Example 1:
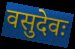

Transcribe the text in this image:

वसुदेवः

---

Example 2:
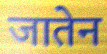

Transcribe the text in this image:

जातेन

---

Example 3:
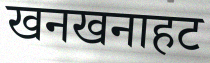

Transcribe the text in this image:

खनखनाहट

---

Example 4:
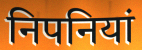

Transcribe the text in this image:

निपनियां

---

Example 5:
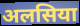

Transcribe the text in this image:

अलसिया